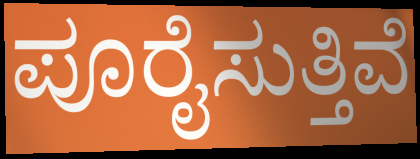
ಪೂರೈಸುತ್ತಿವೆ